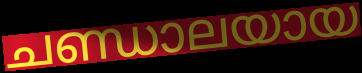
ചണ്ഡാലയായ